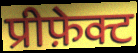
प्रीफ़ेक्ट